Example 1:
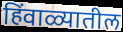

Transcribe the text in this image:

हिंवाळ्यातील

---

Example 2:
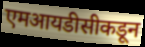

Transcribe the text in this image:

एमआयडीसीकडून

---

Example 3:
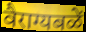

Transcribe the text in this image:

वैराग्यबळें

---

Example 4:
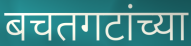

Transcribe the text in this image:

बचतगटांच्या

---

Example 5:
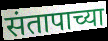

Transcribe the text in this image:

संतापाच्या